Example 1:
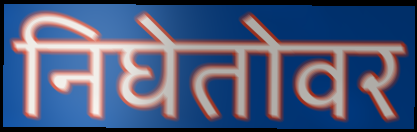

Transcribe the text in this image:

निघेतोवर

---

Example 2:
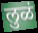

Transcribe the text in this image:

लुळं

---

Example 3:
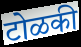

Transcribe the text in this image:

टोळकी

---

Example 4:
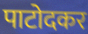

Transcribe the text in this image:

पाटोदकर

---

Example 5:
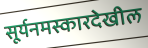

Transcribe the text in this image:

सूर्यनमस्कारदेखील